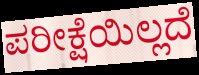
ಪರೀಕ್ಷೆಯಿಲ್ಲದೆ